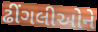
ઢીંગલીઓને